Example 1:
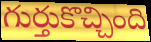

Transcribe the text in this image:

గుర్తుకొచ్చింది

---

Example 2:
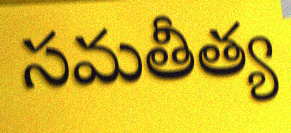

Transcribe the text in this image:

సమతీత్య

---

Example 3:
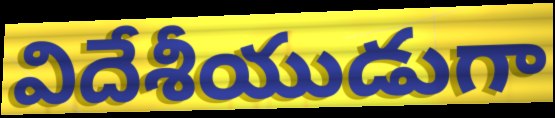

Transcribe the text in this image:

విదేశీయుడుగా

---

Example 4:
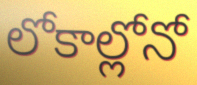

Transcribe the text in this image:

లోకాల్లోనో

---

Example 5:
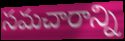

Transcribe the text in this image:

సమచారాన్ని